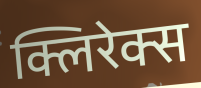
क्लिरेक्स